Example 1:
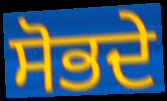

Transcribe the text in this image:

ਸੋਭਦੇ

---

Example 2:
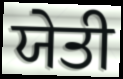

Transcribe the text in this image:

ਯੇਤੀ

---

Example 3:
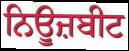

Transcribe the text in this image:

ਨਿਊਜ਼ਬੀਟ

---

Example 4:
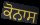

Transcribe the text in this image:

ਕੋਨਾਸ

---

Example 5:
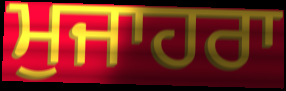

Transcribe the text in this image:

ਮੁਜਾਹਰਾ